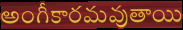
అంగీకారమవుతాయి